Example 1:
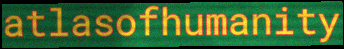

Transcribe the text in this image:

atlasofhumanity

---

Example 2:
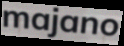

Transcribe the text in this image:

majano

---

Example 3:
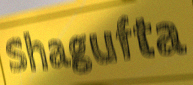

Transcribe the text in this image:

Shagufta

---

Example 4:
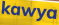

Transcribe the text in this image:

kawya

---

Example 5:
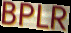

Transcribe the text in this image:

BPLR